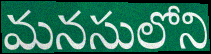
మనసులోని